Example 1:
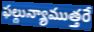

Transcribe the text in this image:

ఫల్గున్యాముత్తరే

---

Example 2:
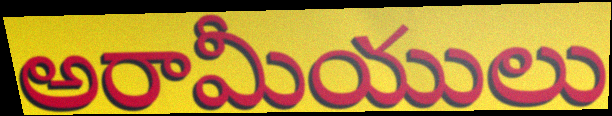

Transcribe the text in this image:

అరామీయులు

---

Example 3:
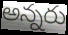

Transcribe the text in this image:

అన్నరు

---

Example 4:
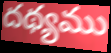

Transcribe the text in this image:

దథ్యము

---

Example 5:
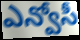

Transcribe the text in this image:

ఎన్వోసీ